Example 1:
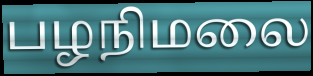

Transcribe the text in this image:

பழநிமலை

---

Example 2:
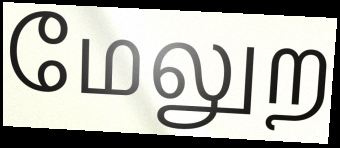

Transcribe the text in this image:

மேலுற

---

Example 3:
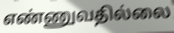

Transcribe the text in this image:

எண்ணுவதில்லை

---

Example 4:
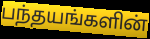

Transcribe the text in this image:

பந்தயங்களின்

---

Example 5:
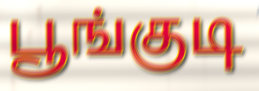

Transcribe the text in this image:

பூங்குடி